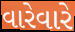
વારેવારે